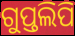
ଗୁପ୍ତଲିପି